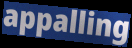
appalling